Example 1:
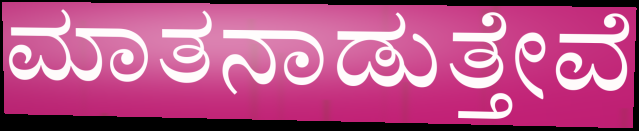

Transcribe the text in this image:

ಮಾತನಾಡುತ್ತೇವೆ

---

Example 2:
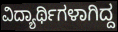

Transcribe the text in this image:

ವಿದ್ಯಾರ್ಥಿಗಳಾಗಿದ್ದ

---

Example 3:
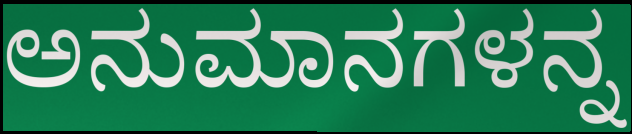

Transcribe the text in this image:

ಅನುಮಾನಗಳನ್ನ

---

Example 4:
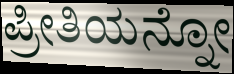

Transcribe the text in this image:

ಪ್ರೀತಿಯನ್ನೋ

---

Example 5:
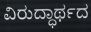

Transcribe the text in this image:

ವಿರುದ್ಧಾರ್ಥದ